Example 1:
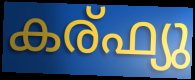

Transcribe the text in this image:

കര്ഫ്യു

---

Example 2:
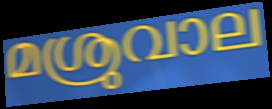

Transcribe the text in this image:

മശ്രുവാല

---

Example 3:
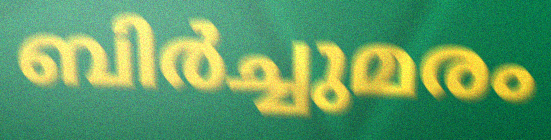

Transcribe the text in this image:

ബിർച്ചുമരം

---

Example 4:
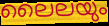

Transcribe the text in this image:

ലൈലയും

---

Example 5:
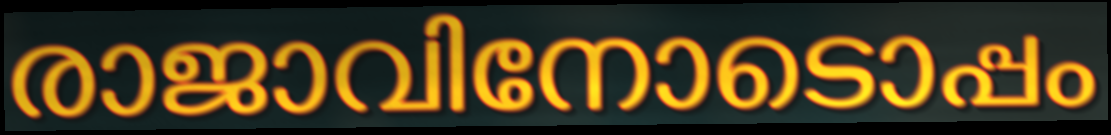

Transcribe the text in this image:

രാജാവിനോടൊപ്പം